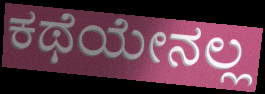
ಕಥೆಯೇನಲ್ಲ